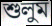
শুলুম